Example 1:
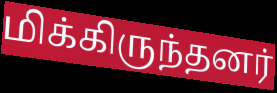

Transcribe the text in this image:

மிக்கிருந்தனர்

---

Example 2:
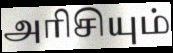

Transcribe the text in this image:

அரிசியும்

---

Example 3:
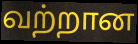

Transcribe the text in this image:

வற்றான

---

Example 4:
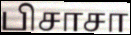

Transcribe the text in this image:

பிசாசா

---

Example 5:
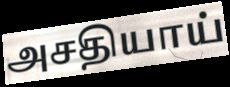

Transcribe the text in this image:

அசதியாய்